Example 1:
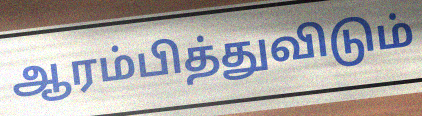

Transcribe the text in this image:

ஆரம்பித்துவிடும்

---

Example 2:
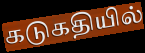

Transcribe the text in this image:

கடுகதியில்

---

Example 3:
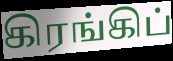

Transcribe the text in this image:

கிரங்கிப்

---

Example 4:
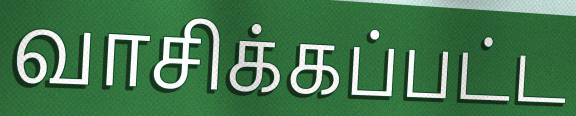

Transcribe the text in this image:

வாசிக்கப்பட்ட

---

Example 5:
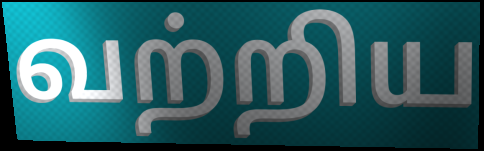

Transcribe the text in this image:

வற்றிய